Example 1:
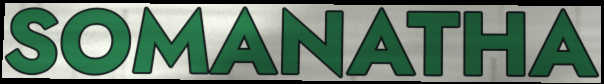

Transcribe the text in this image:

SOMANATHA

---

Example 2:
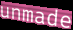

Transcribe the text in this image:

unmade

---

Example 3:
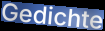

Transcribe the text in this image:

Gedichte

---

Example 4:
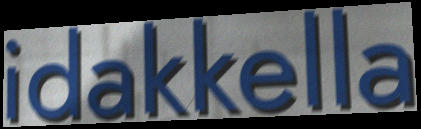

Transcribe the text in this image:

idakkella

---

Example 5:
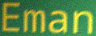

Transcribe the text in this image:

Eman